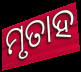
ମୃତାହ